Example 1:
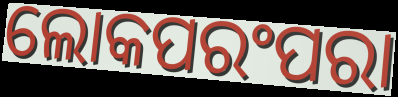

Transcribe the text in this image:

ଲୋକପରଂପରା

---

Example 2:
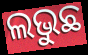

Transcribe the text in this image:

ଲଭୁଛ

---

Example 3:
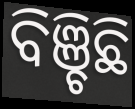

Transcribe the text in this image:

ବିଞ୍ଚିଛି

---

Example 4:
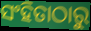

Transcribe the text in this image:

ସଂହିତାଠାରୁ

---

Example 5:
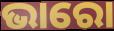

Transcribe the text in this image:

ଭାରୋ